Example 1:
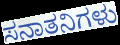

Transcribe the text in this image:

ಸನಾತನಿಗಳು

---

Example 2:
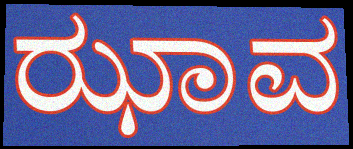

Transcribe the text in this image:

ಝಾವ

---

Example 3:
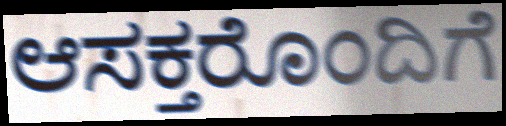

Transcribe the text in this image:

ಆಸಕ್ತರೊಂದಿಗೆ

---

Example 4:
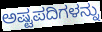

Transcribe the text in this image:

ಅಷ್ಟಪದಿಗಳನ್ನು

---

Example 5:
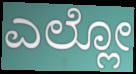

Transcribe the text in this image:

ಎಲ್ಲೋ